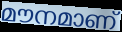
മൗനമാണ്